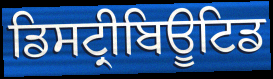
ਡਿਸਟ੍ਰੀਬਿਊਟਿਡ